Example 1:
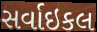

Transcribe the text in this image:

સર્વાઇકલ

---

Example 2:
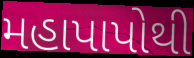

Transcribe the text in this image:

મહાપાપોથી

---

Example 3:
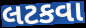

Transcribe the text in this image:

લટકવા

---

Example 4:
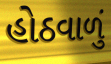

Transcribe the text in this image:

હોઠવાળું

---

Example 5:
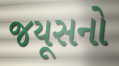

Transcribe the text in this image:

જયૂસનો